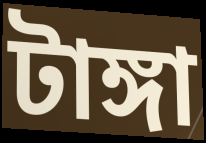
টাঙ্গা